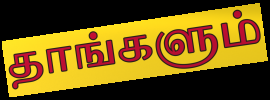
தாங்களும்